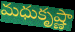
మధుకృష్ణా